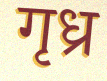
गृध्र